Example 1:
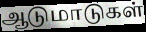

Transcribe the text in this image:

ஆடுமாடுகள்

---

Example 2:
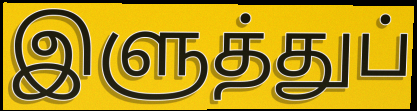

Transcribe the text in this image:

இளுத்துப்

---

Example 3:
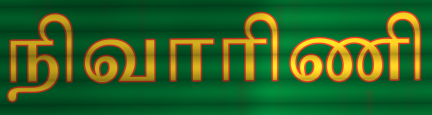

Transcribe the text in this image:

நிவாரிணி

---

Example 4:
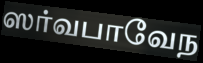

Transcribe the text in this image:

ஸர்வபாவேந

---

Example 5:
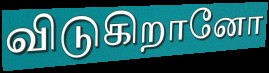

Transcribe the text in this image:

விடுகிறானோ